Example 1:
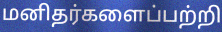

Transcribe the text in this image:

மனிதர்களைப்பற்றி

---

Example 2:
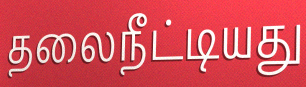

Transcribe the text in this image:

தலைநீட்டியது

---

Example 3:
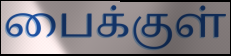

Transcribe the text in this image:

பைக்குள்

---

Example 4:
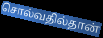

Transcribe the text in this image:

சொல்வதில்தான்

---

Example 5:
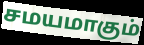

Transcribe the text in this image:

சமயமாகும்